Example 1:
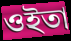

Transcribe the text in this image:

ওইতা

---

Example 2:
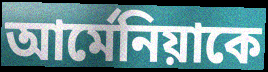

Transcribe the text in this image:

আর্মেনিয়াকে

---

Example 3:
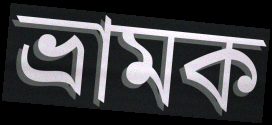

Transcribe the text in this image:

ভ্রামক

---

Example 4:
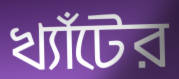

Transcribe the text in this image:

খ্যাঁটের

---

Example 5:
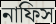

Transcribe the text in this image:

নাফিস